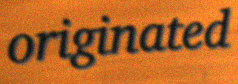
originated